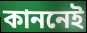
কাননেই